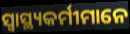
ସ୍ବାସ୍ଥ୍ୟକର୍ମୀମାନେ